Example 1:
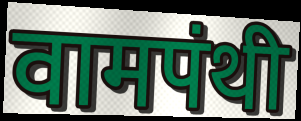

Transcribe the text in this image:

वामपंथी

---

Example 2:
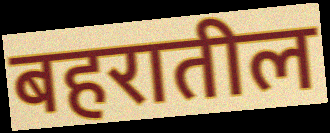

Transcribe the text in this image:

बहरातील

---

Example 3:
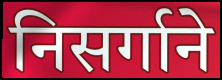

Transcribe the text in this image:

निसर्गाने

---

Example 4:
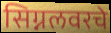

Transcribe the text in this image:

सिग्नलवरचे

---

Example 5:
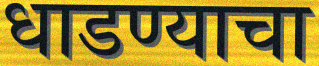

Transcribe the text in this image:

धाडण्याचा